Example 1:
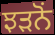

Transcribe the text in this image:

ਝੜਨੋਂ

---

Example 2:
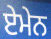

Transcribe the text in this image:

ਏਮੇਨ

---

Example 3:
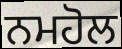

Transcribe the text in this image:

ਨਮਹੋਲ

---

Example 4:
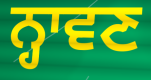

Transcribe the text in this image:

ਨ੍ਹਾਵਣ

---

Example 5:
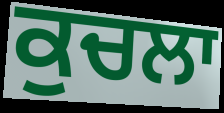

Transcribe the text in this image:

ਕੁਚਲਾ